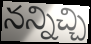
నన్నిచ్చి